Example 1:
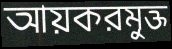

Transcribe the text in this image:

আয়করমুক্ত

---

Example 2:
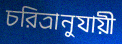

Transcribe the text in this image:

চরিত্রানুযায়ী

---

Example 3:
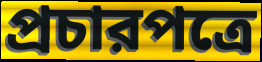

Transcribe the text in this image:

প্রচারপত্রে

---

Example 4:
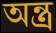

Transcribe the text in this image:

অন্ত্র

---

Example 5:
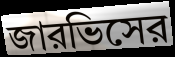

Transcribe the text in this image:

জারভিসের